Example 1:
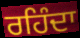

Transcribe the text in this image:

ਰਹਿੰਦਾ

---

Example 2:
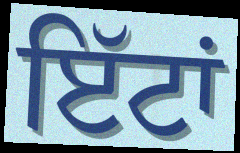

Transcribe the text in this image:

ਇੱਟਾਂ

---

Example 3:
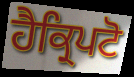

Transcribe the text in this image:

ਹੈਕ੍ਰਿਪਟੋ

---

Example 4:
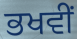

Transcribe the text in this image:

ਭਖਵੀਂ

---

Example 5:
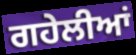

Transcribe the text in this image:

ਗਹੇਲੀਆਂ